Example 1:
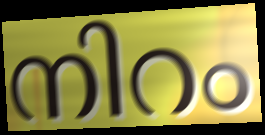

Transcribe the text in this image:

നിറം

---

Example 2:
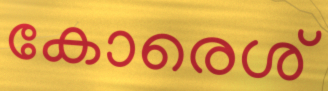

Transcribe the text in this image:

കോരെശ്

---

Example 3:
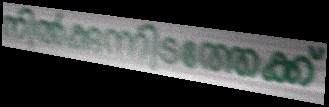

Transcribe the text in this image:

നിൽക്കുന്നിടത്തേക്ക്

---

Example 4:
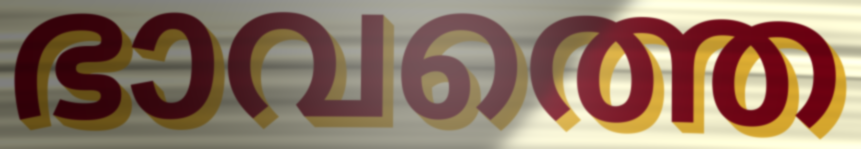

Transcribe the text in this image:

ഭാവത്തെ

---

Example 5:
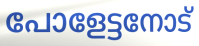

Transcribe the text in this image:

പോളേട്ടനോട്